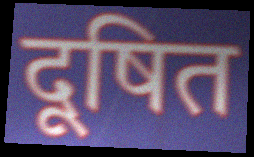
दूषित